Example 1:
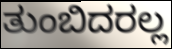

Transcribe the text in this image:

ತುಂಬಿದರಲ್ಲ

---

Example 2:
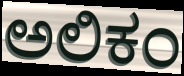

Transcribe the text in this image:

ಅಲಿಕಂ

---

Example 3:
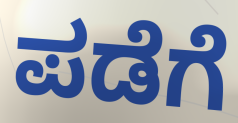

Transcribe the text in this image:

ಪಡೆಗೆ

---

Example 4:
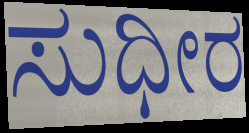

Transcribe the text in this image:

ಸುಧೀರ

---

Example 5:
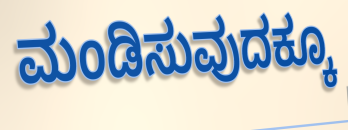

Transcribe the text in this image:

ಮಂಡಿಸುವುದಕ್ಕೂ